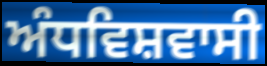
ਅੰਧਵਿਸ਼ਵਾਸੀ